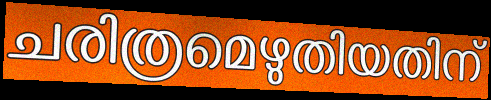
ചരിത്രമെഴുതിയതിന്